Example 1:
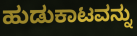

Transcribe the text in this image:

ಹುಡುಕಾಟವನ್ನು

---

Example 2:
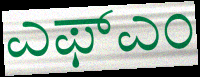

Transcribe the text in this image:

ಎಫ್ಎಂ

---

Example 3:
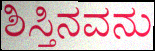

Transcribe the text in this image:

ಶಿಸ್ತಿನವನು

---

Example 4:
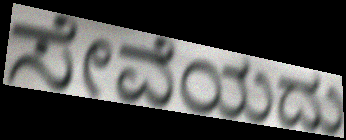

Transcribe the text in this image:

ಸೇವೆಯದು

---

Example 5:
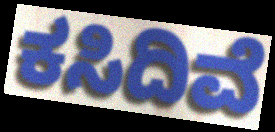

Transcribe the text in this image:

ಕಸಿದಿವೆ